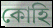
কোহি